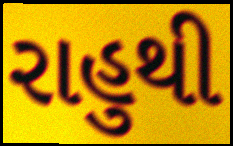
રાહુથી